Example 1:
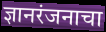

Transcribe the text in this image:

ज्ञानरंजनाचा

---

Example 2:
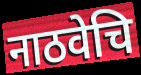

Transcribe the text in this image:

नाठवेचि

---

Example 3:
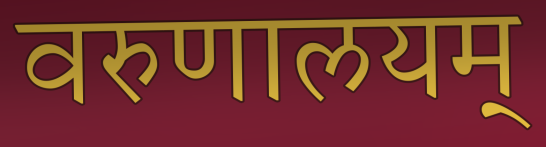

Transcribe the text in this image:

वरुणालयम्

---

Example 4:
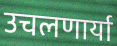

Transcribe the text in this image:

उचलणार्या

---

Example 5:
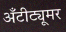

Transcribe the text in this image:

अँटीट्यूमर